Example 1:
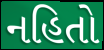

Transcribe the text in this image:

નહિતો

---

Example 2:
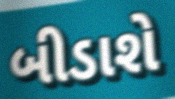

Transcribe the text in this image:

બીડાશે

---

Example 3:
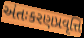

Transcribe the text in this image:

અંતઃકરણપ્રવૃત્તિ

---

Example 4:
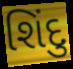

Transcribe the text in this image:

શિંદુ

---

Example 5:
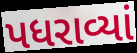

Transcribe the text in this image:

પધરાવ્યાં